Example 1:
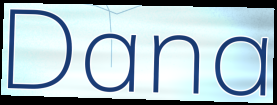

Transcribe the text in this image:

Dana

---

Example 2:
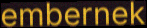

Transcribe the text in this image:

embernek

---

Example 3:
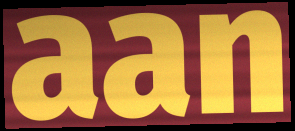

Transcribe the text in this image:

aan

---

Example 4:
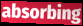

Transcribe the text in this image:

absorbing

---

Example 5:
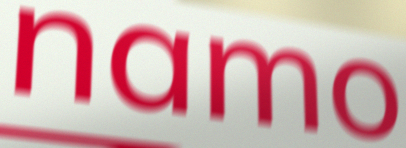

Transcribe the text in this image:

namo